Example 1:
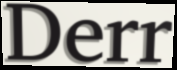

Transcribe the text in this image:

Derr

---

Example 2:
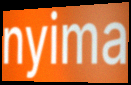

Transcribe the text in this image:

nyima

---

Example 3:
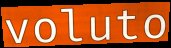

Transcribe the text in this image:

voluto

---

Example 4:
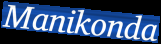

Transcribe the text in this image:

Manikonda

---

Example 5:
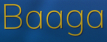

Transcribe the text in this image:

Baaga